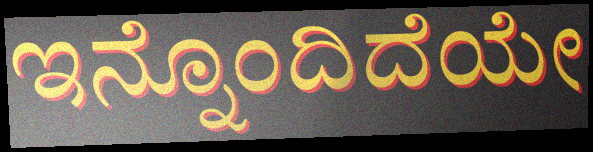
ಇನ್ನೊಂದಿದೆಯೇ